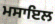
ਮਸਾਇਲ